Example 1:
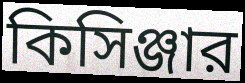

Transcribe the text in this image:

কিসিঞ্জার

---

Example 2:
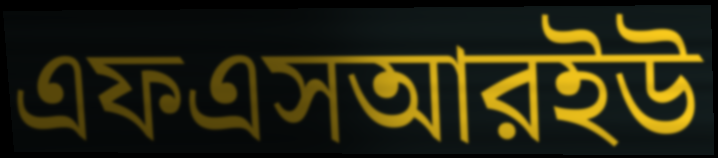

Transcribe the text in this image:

এফএসআরইউ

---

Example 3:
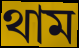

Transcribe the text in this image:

থাম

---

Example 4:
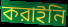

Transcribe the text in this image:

করাইনি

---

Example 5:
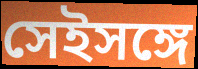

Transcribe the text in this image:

সেইসঙ্গে